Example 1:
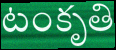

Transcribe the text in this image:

టంకృతి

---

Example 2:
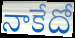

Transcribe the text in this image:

నాకేదో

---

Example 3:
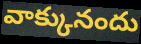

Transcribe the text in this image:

వాక్కునందు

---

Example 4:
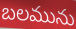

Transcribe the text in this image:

బలమును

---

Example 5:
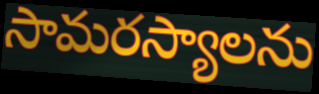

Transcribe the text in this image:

సామరస్యాలను